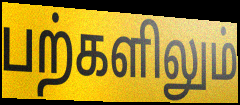
பற்களிலும்